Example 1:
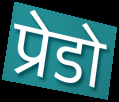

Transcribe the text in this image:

प्रेडो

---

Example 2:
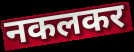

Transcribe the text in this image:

नकलकर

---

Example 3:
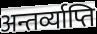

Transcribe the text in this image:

अन्तर्व्याप्ति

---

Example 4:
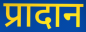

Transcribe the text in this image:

प्रादान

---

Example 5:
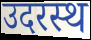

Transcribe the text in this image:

उदरस्थ